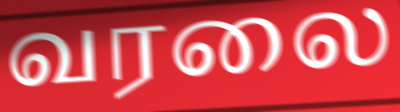
வரலை